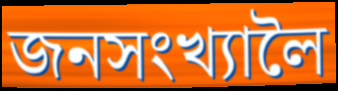
জনসংখ্যালৈ